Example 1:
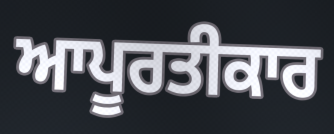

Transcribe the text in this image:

ਆਪੂਰਤੀਕਾਰ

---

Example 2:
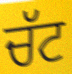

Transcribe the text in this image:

ਚੱਟ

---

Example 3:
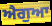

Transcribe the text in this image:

ਐਗੁਆ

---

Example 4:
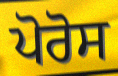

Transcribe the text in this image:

ਪੋਰੋਸ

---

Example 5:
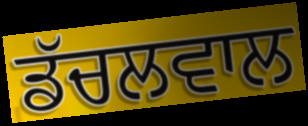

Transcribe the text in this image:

ਡੱਚਲਵਾਲ